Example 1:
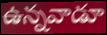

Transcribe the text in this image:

ఉన్నవాడూ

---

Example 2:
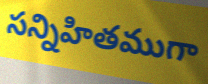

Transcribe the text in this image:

సన్నిహితముగా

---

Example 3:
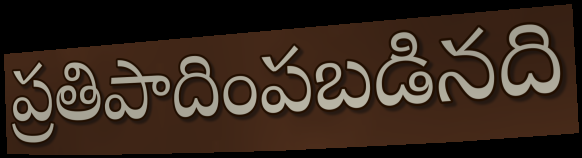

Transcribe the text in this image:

ప్రతిపాదింపబడినది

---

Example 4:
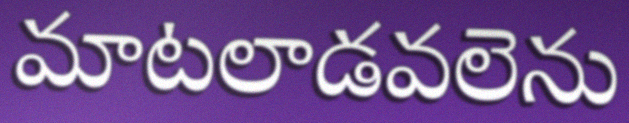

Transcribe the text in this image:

మాటలాడవలెను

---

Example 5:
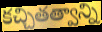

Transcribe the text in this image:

కచ్చితత్వాన్ని